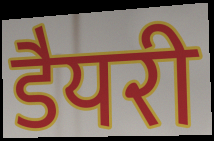
डैयरी